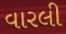
વારલી